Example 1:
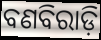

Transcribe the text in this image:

ବଣବିରାଡ଼ି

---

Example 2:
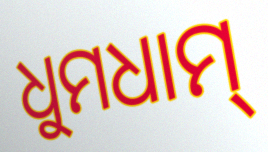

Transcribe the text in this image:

ଧୁମଧାମ୍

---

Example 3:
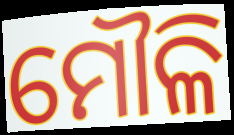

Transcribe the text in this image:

ମୌଳି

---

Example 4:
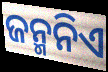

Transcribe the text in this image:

ଜନ୍ମନିଏ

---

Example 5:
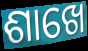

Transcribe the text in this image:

ଶାଖେ